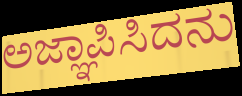
ಅಜ್ಞಾಪಿಸಿದನು